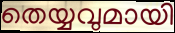
തെയ്യവുമായി